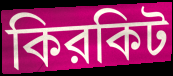
কিরকিট